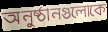
অনুষ্ঠানগুলোকে